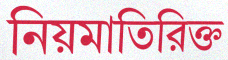
নিয়মাতিরিক্ত